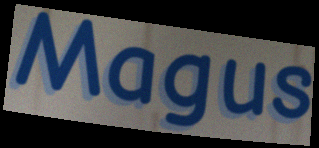
Magus